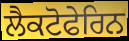
ਲੈਕਟੋਫੇਰਿਨ